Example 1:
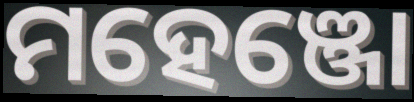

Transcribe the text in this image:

ମହେଞ୍ଜୋ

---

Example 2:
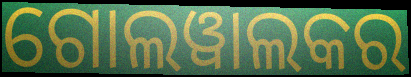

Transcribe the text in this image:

ଗୋଲୱାଲକର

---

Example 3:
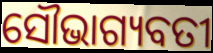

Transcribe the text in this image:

ସୌଭାଗ୍ୟବତୀ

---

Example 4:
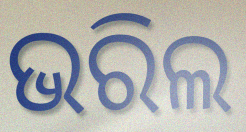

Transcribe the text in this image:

ଭରିଲ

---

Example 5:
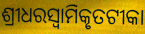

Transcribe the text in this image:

ଶ୍ରୀଧରସ୍ଵାମିକୃତଟୀକା